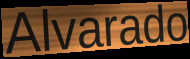
Alvarado